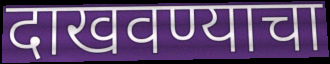
दाखवण्याचा